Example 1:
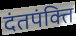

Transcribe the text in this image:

दंतपंक्ति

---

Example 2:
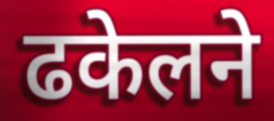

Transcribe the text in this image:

ढकेलने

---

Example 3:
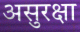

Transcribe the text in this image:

असुरक्षा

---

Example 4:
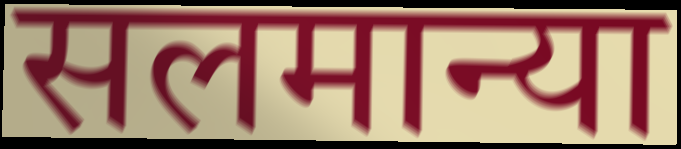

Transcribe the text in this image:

सलमान्या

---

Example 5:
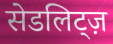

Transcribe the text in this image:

सेडलिट्ज़